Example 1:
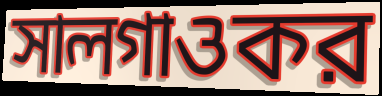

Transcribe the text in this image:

সালগাওকর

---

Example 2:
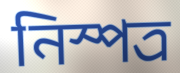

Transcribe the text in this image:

নিস্পত্র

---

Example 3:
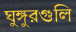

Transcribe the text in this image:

ঘুঙ্গুরগুলি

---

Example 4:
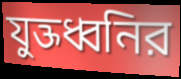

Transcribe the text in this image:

যুক্তধ্বনির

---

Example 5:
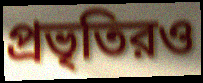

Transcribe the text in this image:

প্রভৃতিরও